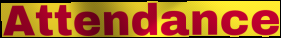
Attendance